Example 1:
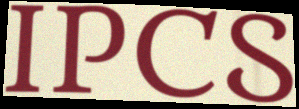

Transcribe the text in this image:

IPCS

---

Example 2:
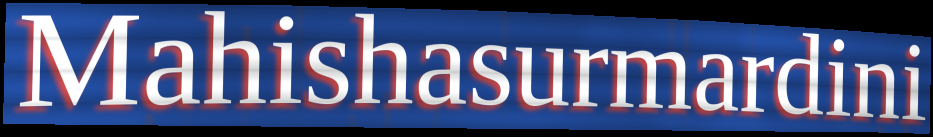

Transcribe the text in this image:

Mahishasurmardini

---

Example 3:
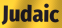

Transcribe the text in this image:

Judaic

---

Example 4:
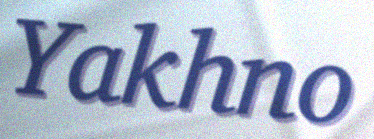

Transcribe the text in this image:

Yakhno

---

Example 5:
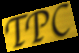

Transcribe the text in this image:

TPC